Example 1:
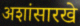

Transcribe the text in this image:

अशांसारखे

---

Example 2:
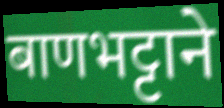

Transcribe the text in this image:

बाणभट्टाने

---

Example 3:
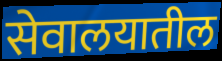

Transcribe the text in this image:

सेवालयातील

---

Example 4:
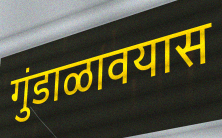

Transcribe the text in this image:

गुंडाळावयास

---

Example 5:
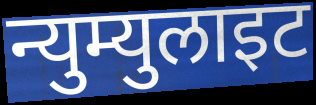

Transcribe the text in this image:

न्युम्युलाइट